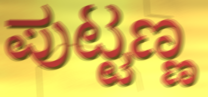
ಪುಟ್ಟಣ್ಣ